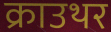
क्राउथर